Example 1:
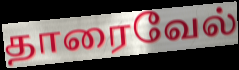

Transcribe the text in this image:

தாரைவேல்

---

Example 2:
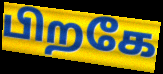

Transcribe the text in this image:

பிறகே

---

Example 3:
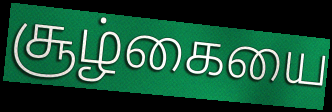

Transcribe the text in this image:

சூழ்கையை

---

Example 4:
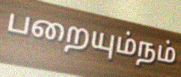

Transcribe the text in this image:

பறையும்நம்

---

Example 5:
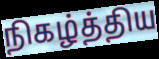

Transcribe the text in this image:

நிகழ்த்திய